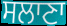
ਸਲਾਣਾ